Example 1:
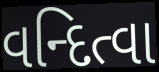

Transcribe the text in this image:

વન્દિત્વા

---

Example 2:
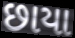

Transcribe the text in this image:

છાયા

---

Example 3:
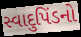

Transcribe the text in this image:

સ્વાદુપિંડનો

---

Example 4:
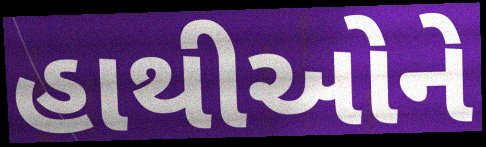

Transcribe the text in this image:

હાથીઓને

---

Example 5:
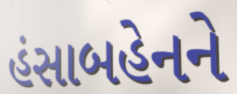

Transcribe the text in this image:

હંસાબહેનને